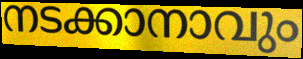
നടക്കാനാവും